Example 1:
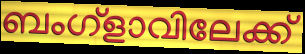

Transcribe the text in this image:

ബംഗ്ളാവിലേക്ക്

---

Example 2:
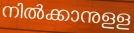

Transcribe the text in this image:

നിൽക്കാനുളള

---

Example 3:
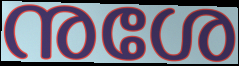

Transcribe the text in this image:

നുശേ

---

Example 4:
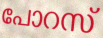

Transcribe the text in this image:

പോറസ്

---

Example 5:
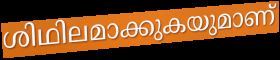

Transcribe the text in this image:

ശിഥിലമാക്കുകയുമാണ്